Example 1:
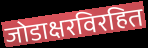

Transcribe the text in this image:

जोडाक्षरविरहित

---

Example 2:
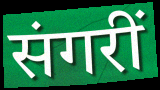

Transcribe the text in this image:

संगरीं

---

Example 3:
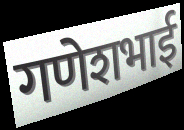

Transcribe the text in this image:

गणेशभाई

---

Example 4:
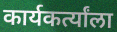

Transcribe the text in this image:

कार्यकर्त्यांला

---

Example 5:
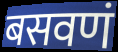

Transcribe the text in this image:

बसवणं